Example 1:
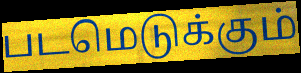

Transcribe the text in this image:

படமெடுக்கும்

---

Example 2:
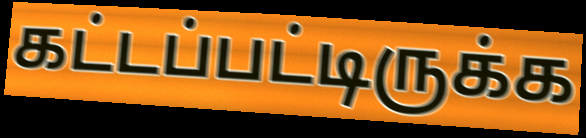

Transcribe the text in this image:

கட்டப்பட்டிருக்க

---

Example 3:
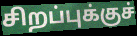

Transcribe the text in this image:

சிறப்புக்குச்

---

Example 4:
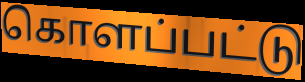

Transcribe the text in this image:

கொளப்பட்டு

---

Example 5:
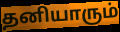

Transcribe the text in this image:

தனியாரும்